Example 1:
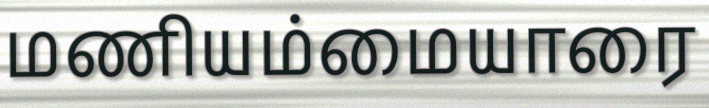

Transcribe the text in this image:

மணியம்மையாரை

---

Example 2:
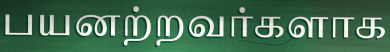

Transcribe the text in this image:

பயனற்றவர்களாக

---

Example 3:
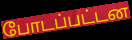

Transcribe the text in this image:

போடப்பட்டன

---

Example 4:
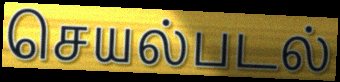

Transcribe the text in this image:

செயல்படல்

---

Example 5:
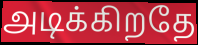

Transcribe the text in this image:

அடிக்கிறதே